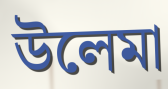
উলেমা